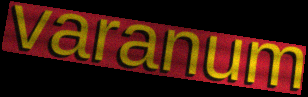
varanum